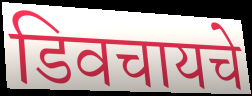
डिवचायचे